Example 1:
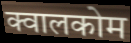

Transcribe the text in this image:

क्वालकोम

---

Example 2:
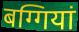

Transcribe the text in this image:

बग्गियां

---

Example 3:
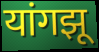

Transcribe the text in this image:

यांगझू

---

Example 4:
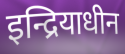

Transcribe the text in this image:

इन्द्रियाधीन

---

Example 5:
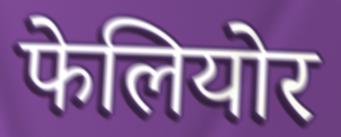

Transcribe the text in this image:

फेलियोर